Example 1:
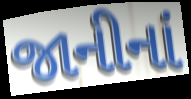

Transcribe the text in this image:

જાનીનાં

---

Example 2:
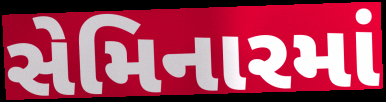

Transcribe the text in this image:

સેમિનારમાં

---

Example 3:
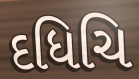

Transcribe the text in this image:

દધિચિ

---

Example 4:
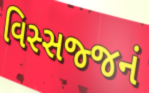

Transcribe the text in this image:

વિસ્સજ્જનં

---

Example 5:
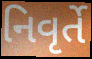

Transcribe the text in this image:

નિવૃર્તે